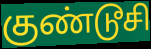
குண்டூசி